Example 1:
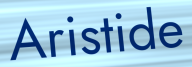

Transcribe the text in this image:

Aristide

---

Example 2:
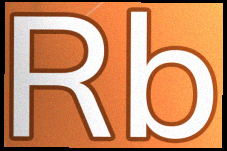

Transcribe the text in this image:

Rb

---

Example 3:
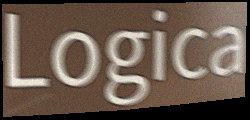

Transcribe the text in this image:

Logica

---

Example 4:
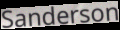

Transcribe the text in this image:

Sanderson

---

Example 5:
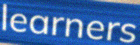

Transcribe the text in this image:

learners